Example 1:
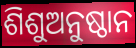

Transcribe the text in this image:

ଶିଶୁଅନୁଷ୍ଠାନ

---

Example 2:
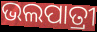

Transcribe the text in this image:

ଭଲପାତ୍ରୀ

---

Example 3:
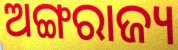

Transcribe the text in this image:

ଅଙ୍ଗରାଜ୍ୟ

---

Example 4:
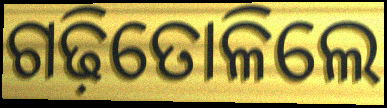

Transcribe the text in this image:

ଗଢ଼ିତୋଳିଲେ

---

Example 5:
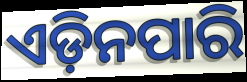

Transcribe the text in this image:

ଏଡ଼ିନପାରି